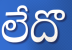
లేదొ